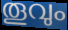
തൂവും